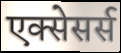
एक्सेसर्स